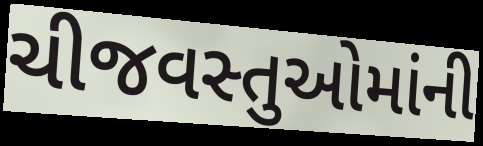
ચીજવસ્તુઓમાંની